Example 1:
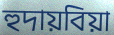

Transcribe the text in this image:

হুদায়বিয়া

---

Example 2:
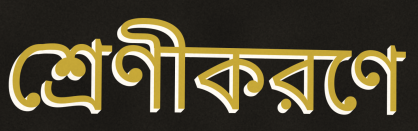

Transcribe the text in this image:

শ্রেণীকরণে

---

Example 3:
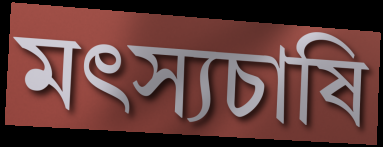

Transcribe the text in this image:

মৎস্যচাষি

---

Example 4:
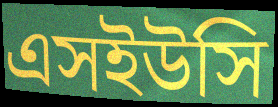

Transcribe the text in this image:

এসইউসি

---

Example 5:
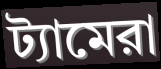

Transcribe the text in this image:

ট্যামেরা